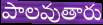
పాలవుతారు